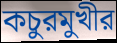
কচুরমুখীর